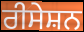
ਰੀਸੇਸ਼ਨ